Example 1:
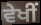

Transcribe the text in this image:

ਵੇਖੀਂ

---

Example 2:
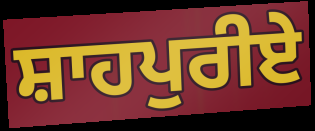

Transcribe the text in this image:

ਸ਼ਾਹਪੁਰੀਏ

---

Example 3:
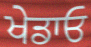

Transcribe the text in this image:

ਖੇਡਾਓ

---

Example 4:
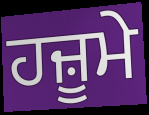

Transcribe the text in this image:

ਹਜ਼ੂਮੇ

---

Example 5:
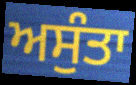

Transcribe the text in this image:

ਅਸੁੰਤਾ